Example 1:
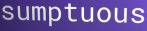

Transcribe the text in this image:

sumptuous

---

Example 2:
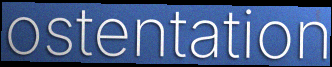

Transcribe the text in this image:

ostentation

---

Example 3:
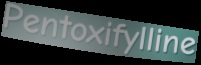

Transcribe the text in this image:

Pentoxifylline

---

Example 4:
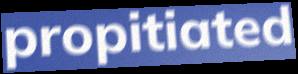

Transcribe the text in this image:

propitiated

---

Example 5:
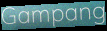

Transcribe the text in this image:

Gampang